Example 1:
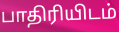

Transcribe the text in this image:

பாதிரியிடம்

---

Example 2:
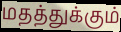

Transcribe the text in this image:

மதத்துக்கும்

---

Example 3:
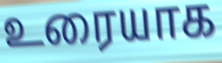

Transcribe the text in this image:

உரையாக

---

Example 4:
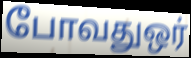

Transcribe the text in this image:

போவதுஒர்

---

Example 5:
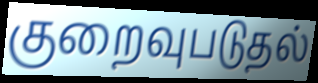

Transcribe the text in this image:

குறைவுபடுதல்